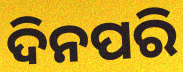
ଦିନପରି